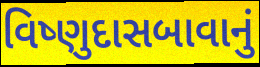
વિષ્ણુદાસબાવાનું